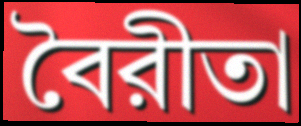
বৈরীতা